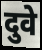
दुवे